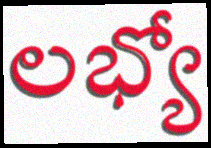
లభ్యో